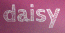
daisy